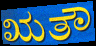
ಋತೌ